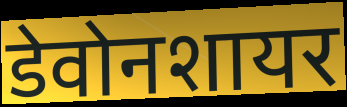
डेवोनशायर